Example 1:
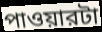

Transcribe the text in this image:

পাওয়ারটা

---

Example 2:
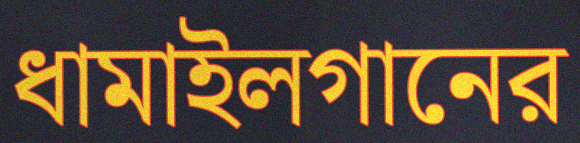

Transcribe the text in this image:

ধামাইলগানের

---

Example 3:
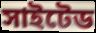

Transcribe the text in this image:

সাইটেড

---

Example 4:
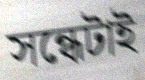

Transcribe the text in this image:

সন্ধেটাই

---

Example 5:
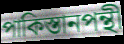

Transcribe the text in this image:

পাকিস্তানপন্থী